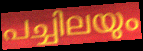
പച്ചിലയും